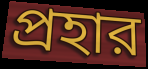
প্রহার